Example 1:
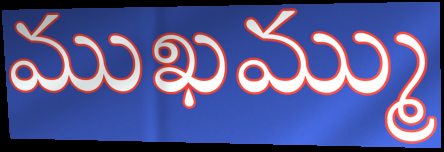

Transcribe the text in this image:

ముఖమ్ము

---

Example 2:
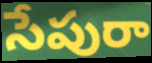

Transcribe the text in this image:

సేపురా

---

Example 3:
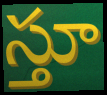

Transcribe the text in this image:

స్తూ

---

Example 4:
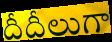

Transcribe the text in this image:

దీదీలుగా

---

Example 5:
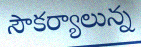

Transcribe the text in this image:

సౌకర్యాలున్న